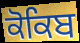
ਕੋਕਿਬ